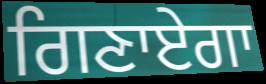
ਗਿਣਾਏਗਾ